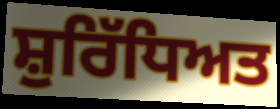
ਸ਼ੁਰਿੱਧਿਅਤ